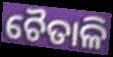
ଚୈତାଳି